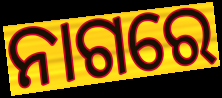
ନାଗରେ